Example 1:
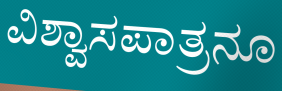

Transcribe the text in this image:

ವಿಶ್ವಾಸಪಾತ್ರನೂ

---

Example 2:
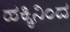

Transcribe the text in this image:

ಹಕ್ಕಿನಿಂದ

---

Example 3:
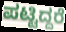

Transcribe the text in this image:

ಪಟ್ಟಿದ್ದರೆ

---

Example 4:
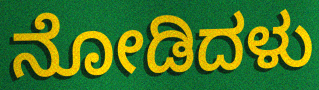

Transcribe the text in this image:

ನೋಡಿದಳು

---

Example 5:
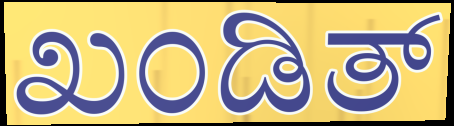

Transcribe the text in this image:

ಖಂಡಿತ್